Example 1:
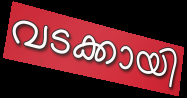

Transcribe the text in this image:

വടക്കായി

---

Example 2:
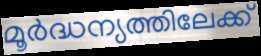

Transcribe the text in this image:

മൂർദ്ധന്യത്തിലേക്ക്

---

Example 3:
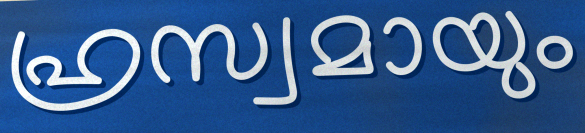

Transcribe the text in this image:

ഹ്രസ്വമായും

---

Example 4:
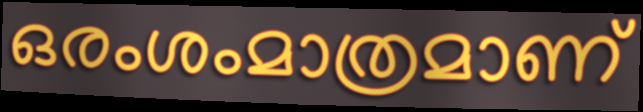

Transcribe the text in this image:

ഒരംശംമാത്രമാണ്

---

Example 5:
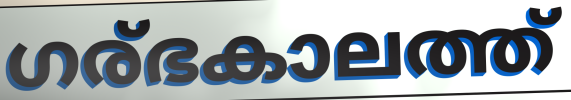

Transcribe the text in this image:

ഗര്ഭകാലത്ത്